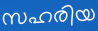
സഹരിയ